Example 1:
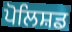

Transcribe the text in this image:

ਪੋਲਿਸ਼ਡ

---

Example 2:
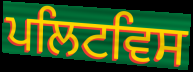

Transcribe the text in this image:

ਪਲਿਟਵਿਸ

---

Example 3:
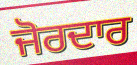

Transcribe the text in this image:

ਜੋਰਦਾਰ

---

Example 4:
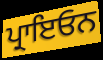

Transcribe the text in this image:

ਪ੍ਰਾਇਓਨ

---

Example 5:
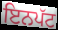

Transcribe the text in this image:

ਇਨਪੱਟ